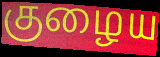
குழைய